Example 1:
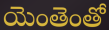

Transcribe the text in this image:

యెంతెంతో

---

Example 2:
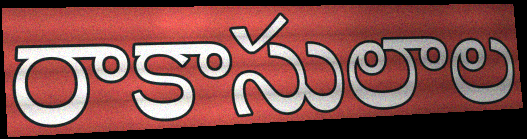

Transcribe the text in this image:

రాకాసులాల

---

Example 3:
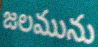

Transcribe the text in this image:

జలమును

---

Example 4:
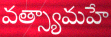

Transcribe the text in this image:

వత్స్యామహే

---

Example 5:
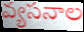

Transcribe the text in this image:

వ్యసనాల